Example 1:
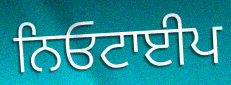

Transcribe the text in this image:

ਨਿਓਟਾਈਪ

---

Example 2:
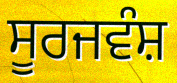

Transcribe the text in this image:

ਸੂਰਜਵੰਸ਼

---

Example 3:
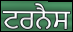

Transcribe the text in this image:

ਟਰਨੈਸ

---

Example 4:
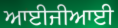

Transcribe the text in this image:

ਆਈਜੀਆਈ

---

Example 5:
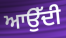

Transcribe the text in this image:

ਆਉੱਦੀ